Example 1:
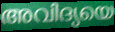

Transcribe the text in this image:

അവിദ്യയെ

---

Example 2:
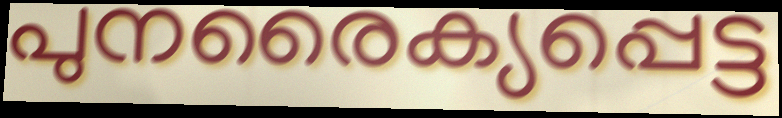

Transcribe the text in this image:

പുനരൈക്യപ്പെട്ട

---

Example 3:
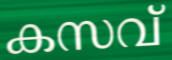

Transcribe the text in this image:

കസവ്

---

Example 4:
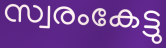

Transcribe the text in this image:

സ്വരംകേട്ടു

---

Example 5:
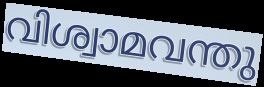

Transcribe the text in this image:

വിശ്വാമവന്തു